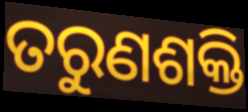
ତରୁଣଶକ୍ତି